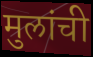
मुलांची